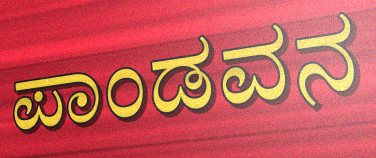
ಪಾಂಡವನ